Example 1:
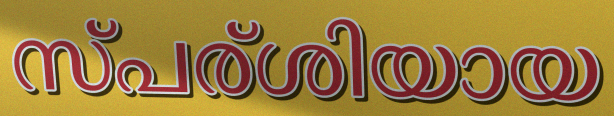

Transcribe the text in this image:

സ്പര്ശിയായ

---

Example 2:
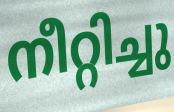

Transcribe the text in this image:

നീറ്റിച്ചു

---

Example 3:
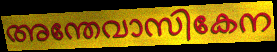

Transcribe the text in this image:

അന്തേവാസികേന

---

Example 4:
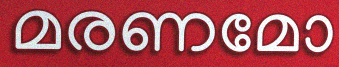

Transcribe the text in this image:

മരണമോ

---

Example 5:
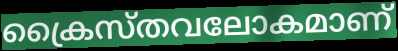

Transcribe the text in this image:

ക്രൈസ്തവലോകമാണ്